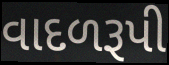
વાદળરૂપી